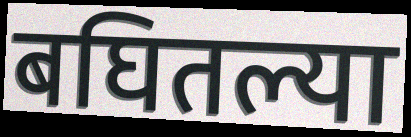
बघितल्या